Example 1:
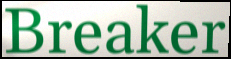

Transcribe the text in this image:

Breaker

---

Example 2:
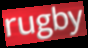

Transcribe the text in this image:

rugby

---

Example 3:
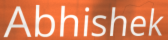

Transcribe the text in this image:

Abhishek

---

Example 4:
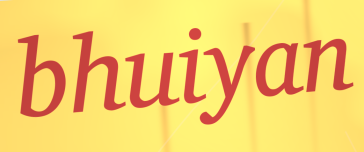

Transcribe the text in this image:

bhuiyan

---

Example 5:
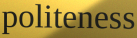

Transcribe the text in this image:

politeness